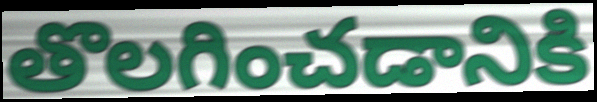
తొలగించడానికి